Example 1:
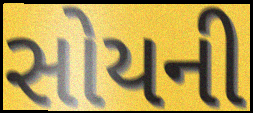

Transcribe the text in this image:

સોયની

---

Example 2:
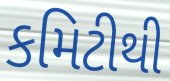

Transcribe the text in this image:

કમિટીથી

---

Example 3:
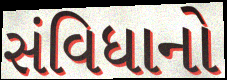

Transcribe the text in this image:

સંવિધાનો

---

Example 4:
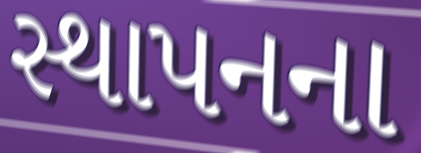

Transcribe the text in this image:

સ્થાપનના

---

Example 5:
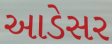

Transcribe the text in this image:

આડેસર